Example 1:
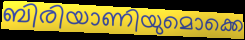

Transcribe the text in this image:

ബിരിയാണിയുമൊക്കെ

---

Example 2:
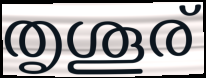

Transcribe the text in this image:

തൃശൂര്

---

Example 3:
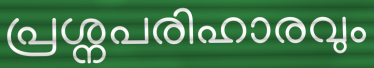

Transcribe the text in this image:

പ്രശ്നപരിഹാരവും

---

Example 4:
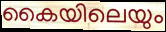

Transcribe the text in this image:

കൈയിലെയും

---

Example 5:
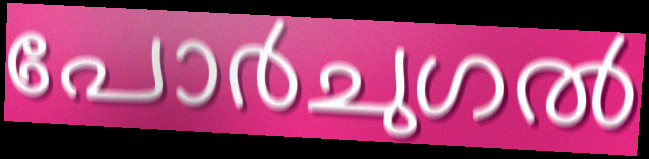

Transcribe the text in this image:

പോർചുഗൽ